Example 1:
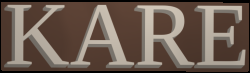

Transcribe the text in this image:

KARE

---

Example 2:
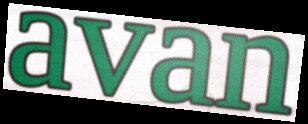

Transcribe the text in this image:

avan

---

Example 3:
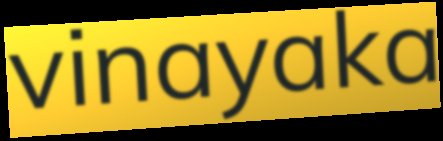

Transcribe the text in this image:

vinayaka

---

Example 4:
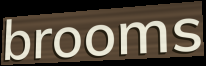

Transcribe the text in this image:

brooms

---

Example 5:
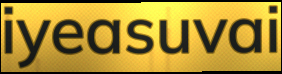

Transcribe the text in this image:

iyeasuvai